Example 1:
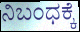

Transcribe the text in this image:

ನಿಬಂಧಕ್ಕೆ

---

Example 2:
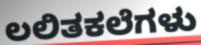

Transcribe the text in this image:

ಲಲಿತಕಲೆಗಳು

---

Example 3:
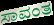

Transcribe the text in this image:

ಸಾವಂತ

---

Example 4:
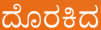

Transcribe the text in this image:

ದೊರಕಿದ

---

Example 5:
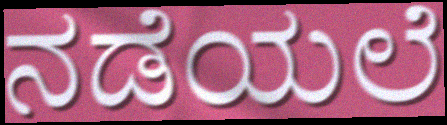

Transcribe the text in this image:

ನಡೆಯಲೆ